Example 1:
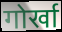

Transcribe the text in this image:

गोर्खा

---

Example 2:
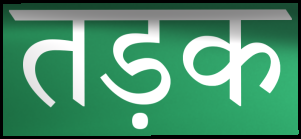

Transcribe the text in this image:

तड़क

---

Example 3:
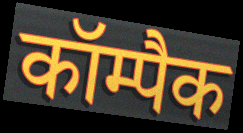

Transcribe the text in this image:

कॉम्पैक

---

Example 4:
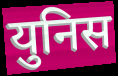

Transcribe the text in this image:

युनिस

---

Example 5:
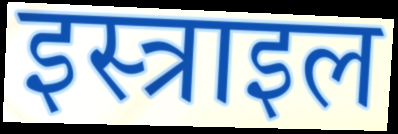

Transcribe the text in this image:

इस्त्राइल